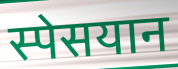
स्पेसयान